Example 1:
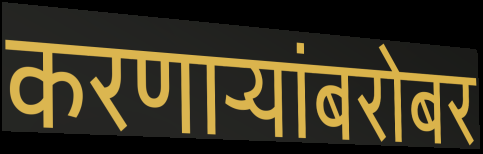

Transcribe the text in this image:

करणार्‍यांबरोबर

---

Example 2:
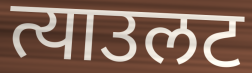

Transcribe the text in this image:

त्याउलट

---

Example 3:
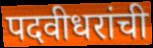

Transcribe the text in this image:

पदवीधरांची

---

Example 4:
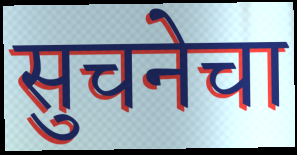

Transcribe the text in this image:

सुचनेचा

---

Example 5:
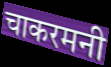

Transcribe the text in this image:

चाकरमनी